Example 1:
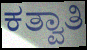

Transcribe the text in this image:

ಕತ್ವಾತಿ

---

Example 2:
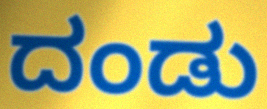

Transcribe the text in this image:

ದಂಡು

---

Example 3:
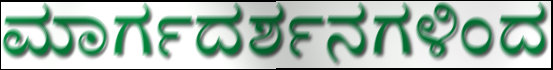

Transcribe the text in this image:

ಮಾರ್ಗದರ್ಶನಗಳಿಂದ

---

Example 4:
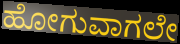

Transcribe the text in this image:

ಹೋಗುವಾಗಲೇ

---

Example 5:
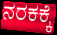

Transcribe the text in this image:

ನರಕಕ್ಕೆ